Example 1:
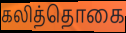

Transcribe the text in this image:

கலித்தொகை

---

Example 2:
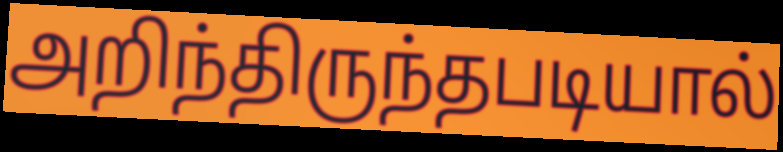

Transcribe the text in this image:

அறிந்திருந்தபடியால்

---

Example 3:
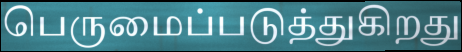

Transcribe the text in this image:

பெருமைப்படுத்துகிறது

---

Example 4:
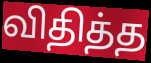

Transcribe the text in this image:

விதித்த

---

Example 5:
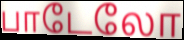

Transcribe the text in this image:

பாடேலோ